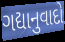
ગદ્યાનુવાદો